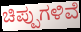
ಚಿಪ್ಪುಗಳಿವೆ